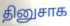
தினுசாக